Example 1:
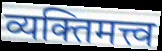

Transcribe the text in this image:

व्यक्तिमत्त्व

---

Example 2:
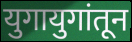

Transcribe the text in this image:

युगायुगांतून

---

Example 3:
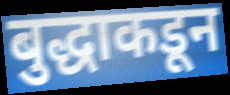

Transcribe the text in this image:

बुद्धाकडून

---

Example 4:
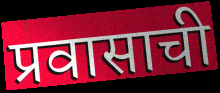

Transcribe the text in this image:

प्रवासाची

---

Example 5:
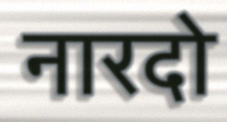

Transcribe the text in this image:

नारदो